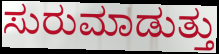
ಸುರುಮಾಡುತ್ತು